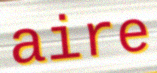
aire